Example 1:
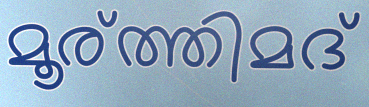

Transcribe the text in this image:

മൂര്ത്തിമദ്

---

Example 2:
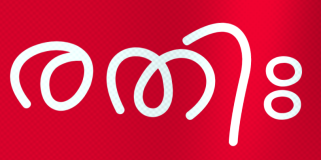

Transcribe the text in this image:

രതിഃ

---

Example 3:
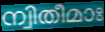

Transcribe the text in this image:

ന്വിതീമാഃ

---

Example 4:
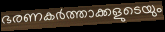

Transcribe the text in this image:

ഭരണകർത്താക്കളുടെയും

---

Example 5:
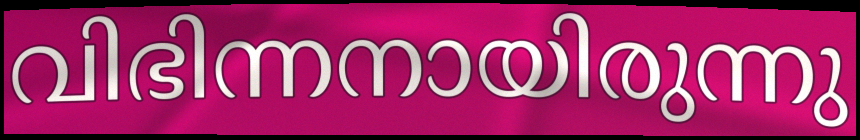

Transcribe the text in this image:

വിഭിന്നനായിരുന്നു